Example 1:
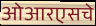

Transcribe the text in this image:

ओआरएसचे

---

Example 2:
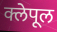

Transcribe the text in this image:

क्लेपूल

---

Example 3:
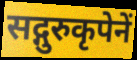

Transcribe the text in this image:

सद्गुरुकृपेनें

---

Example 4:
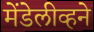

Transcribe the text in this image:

मेंडेलीव्हने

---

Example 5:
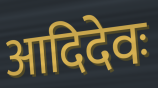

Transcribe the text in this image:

आदिदेवः